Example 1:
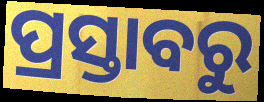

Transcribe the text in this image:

ପ୍ରସ୍ତାବରୁ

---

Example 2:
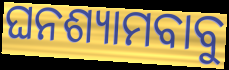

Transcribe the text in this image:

ଘନଶ୍ୟାମବାବୁ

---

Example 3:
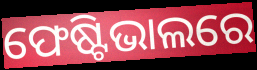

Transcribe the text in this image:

ଫେଷ୍ଟିଭାଲରେ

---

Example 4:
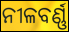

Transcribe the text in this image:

ନୀଳବର୍ଣ୍ଣ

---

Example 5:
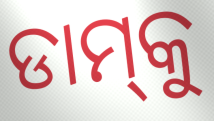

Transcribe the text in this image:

ଡାମ୍‍କୁ